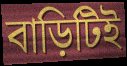
বাড়িটিই